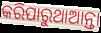
କରିପାରୁଥାଆନ୍ତା